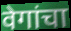
वेगांचा